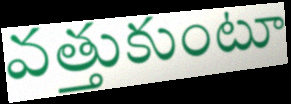
వత్తుకుంటూ